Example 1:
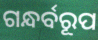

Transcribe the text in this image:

ଗନ୍ଧର୍ବରୂପ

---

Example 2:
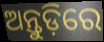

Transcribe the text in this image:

ଅନ୍ତୁଡ଼ିରେ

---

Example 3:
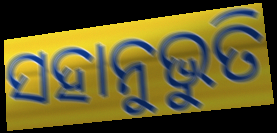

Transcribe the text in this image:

ସହାନୁଭୁତି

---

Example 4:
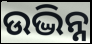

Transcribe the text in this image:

ଉଦ୍ଭିନ୍ନ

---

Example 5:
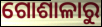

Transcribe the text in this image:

ଗୋଶାଳାରୁ